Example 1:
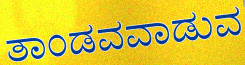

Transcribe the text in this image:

ತಾಂಡವವಾಡುವ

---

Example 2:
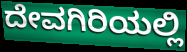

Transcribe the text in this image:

ದೇವಗಿರಿಯಲ್ಲಿ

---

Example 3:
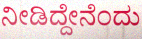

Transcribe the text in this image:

ನೀಡಿದ್ದೇನೆಂದು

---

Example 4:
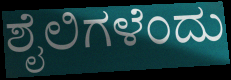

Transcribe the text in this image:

ಶೈಲಿಗಳೆಂದು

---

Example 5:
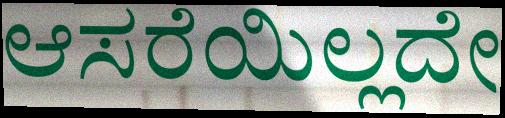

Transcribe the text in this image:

ಆಸರೆಯಿಲ್ಲದೇ